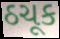
ઠચૂક